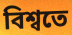
বিশ্বতে